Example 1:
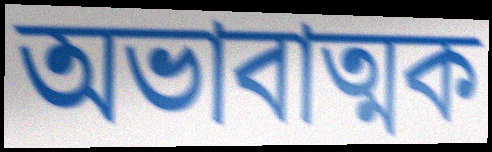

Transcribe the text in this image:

অভাবাত্মক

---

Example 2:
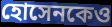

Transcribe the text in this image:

হোসেনকেও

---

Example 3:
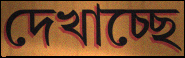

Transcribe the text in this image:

দেখাচ্ছে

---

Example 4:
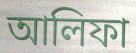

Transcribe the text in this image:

আলিফা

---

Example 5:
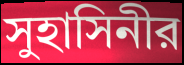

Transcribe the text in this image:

সুহাসিনীর